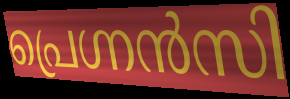
പ്രെഗ്നൻസി